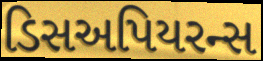
ડિસઅપિયરન્સ